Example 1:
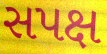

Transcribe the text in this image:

સપક્ષ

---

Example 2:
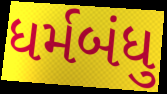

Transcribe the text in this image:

ધર્મબંધુ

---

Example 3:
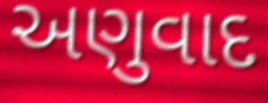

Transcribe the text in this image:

અણુવાદ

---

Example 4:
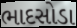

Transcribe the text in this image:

ભાદસોડા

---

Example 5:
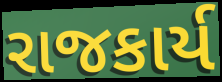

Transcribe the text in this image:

રાજકાર્ય